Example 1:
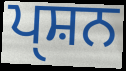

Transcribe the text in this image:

ਪੑਸ਼ਨ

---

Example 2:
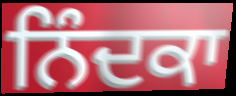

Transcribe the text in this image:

ਨਿੰਦਕਾ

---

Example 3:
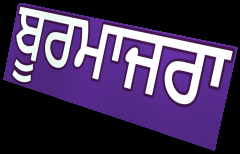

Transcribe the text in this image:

ਬੂਰਮਾਜਰਾ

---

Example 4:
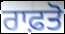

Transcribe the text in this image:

ਰਾਫ਼ਤੋ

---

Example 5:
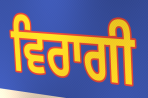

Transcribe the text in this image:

ਵਿਰਾਗੀ